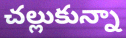
చల్లుకున్నా